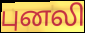
புனலி